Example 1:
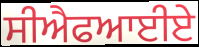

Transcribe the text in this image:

ਸੀਐਫਆਈਏ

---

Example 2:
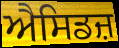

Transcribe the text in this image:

ਐਸਿਡਜ਼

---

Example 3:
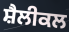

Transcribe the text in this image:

ਸ਼ੈਲੀਕਲ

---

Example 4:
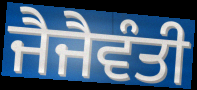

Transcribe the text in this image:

ਜੈਜੈਵੰਤੀ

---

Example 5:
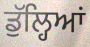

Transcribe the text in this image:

ਡੁੱਲ੍ਹਿਆਂ